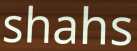
shahs